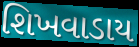
શિખવાડાય